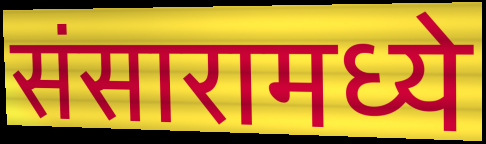
संसारामध्ये